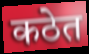
कठेत